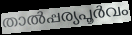
താൽപ്പര്യപൂർവം